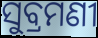
ସୁବ୍ରମଣୀ